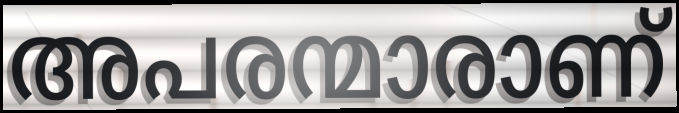
അപരന്മാരാണ്